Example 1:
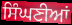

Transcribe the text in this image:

ਸਿੰਘਣੀਆਂ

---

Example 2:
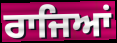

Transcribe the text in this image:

ਰਾਜਿਆਂ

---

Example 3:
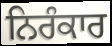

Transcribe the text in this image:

ਨਿਰੰਕਾਰ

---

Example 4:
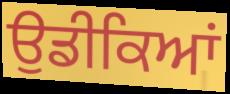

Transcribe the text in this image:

ਉਡੀਕਿਆਂ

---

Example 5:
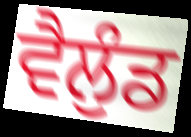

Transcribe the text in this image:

ਵੈਲੁੰਡ